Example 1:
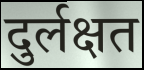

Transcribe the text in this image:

दुर्लक्षत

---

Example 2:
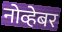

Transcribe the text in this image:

नोव्हेबर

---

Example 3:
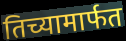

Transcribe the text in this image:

तिच्यामार्फत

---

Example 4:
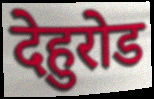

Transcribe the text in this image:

देहुरोड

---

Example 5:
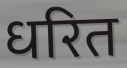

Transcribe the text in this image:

धरित